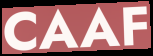
CAAF